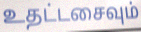
உதட்டசைவும்